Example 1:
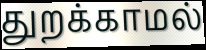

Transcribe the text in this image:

துறக்காமல்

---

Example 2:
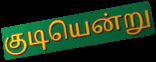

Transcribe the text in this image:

குடியென்று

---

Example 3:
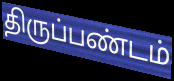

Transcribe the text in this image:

திருப்பண்டம்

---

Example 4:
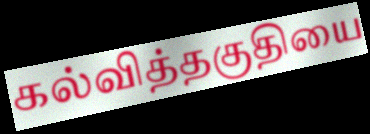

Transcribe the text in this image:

கல்வித்தகுதியை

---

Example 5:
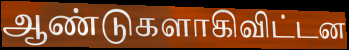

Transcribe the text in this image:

ஆண்டுகளாகிவிட்டன